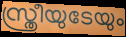
സ്ത്രീയുടേയും